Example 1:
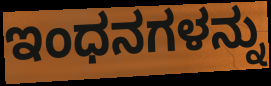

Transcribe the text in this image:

ಇಂಧನಗಳನ್ನು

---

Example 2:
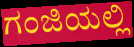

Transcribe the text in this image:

ಗಂಜಿಯಲ್ಲಿ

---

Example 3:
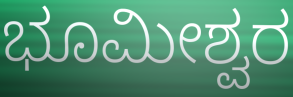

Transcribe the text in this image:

ಭೂಮೀಶ್ವರ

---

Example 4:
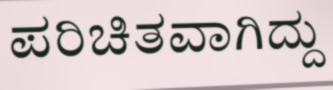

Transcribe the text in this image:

ಪರಿಚಿತವಾಗಿದ್ದು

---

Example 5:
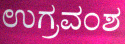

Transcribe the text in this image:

ಉಗ್ರವಂಶ